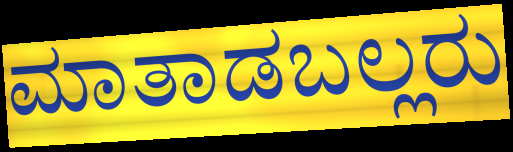
ಮಾತಾಡಬಲ್ಲರು